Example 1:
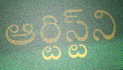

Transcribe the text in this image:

ఆర్టిస్ట్‌ని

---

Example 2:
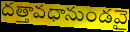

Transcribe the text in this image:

దత్తావధానుండవై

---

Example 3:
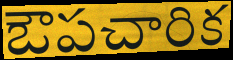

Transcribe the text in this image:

ఔపచారిక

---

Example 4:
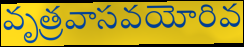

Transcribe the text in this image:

వృత్రవాసవయోరివ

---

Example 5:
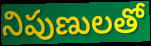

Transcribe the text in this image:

నిపుణులతో